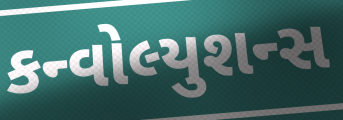
કન્વોલ્યુશન્સ